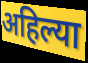
अहिल्या